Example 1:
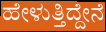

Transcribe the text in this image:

ಹೇಳುತ್ತಿದ್ದೇನೆ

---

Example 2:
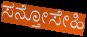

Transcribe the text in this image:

ಸನ್ತೋಸೇಹಿ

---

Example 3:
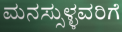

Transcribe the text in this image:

ಮನಸ್ಸುಳ್ಳವರಿಗೆ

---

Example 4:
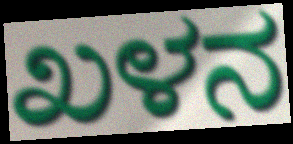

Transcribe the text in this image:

ಖಳನ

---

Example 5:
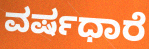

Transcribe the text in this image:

ವರ್ಷಧಾರೆ